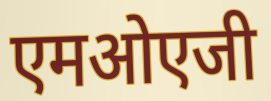
एमओएजी